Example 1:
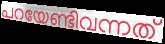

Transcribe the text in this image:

പറയേണ്ടിവന്നത്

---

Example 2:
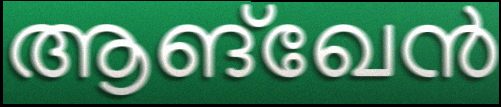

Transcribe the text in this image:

ആങ്ഖേൻ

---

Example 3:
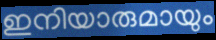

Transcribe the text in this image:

ഇനിയാരുമായും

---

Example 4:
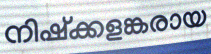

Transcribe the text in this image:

നിഷ്ക്കളങ്കരായ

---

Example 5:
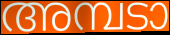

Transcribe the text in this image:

അമ്പടാ